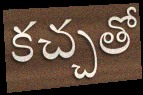
కచ్చతో